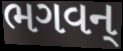
ભગવન્